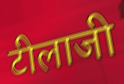
टीलाजी